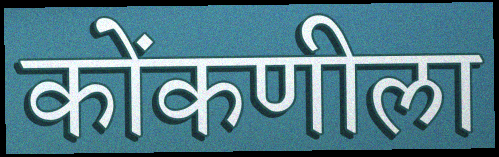
कोंकणीला